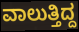
ವಾಲುತ್ತಿದ್ದ